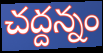
చద్దన్నం